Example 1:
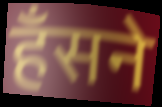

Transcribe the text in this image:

हँसने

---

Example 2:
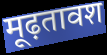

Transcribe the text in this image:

मूढ़तावश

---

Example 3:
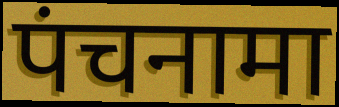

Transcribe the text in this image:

पंचनामा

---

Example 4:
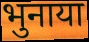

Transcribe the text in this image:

भुनाया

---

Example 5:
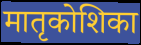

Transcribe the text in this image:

मातृकोशिका